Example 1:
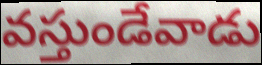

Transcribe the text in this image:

వస్తుండేవాడు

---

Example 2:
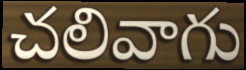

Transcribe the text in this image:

చలివాగు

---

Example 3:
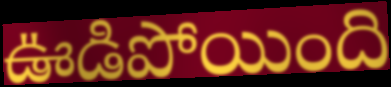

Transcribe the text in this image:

ఊడిపోయింది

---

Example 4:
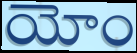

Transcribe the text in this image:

యోం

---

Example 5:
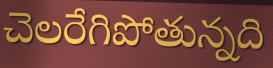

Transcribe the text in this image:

చెలరేగిపోతున్నది